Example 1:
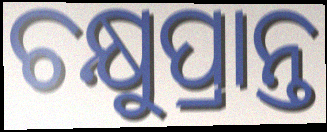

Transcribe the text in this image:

ଚକ୍ଷୁପ୍ରାନ୍ତ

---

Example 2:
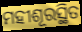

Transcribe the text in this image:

ମହୀଶୂରସ୍ଥିତ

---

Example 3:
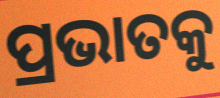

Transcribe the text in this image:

ପ୍ରଭାତକୁ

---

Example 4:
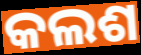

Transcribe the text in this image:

କଲଶ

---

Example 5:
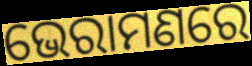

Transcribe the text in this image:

ଭେରାମଣରେ